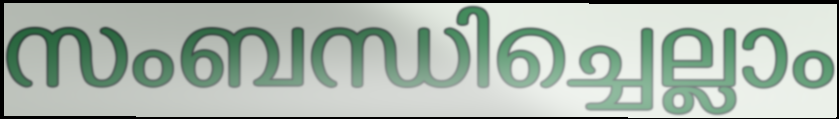
സംബന്ധിച്ചെല്ലാം